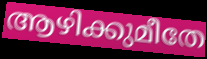
ആഴിക്കുമീതേ